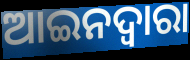
ଆଇନଦ୍ଵାରା